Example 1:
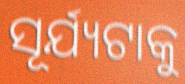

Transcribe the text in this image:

ସୂର୍ଯ୍ୟଟାକୁ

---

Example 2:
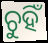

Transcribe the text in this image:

ଚୁହିଁ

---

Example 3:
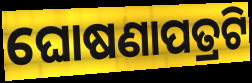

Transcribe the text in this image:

ଘୋଷଣାପତ୍ରଟି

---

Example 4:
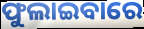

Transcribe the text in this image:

ଫୁଲାଇବାରେ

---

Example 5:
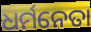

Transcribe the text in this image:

ଧର୍ମନେତା